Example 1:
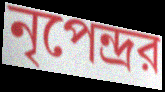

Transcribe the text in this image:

নৃপেন্দ্রর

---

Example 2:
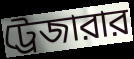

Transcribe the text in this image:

ট্রেজারার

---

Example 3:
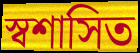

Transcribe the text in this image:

স্বশাসিত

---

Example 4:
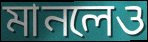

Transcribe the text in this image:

মানলেও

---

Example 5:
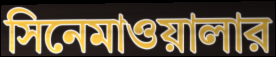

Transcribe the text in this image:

সিনেমাওয়ালার